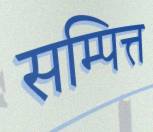
सम्पित्त